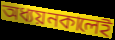
অধ্যয়নকালেই